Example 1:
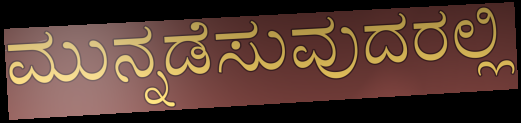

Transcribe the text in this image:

ಮುನ್ನಡೆಸುವುದರಲ್ಲಿ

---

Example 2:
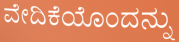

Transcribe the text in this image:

ವೇದಿಕೆಯೊಂದನ್ನು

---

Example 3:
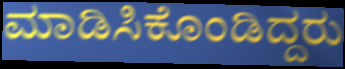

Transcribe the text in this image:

ಮಾಡಿಸಿಕೊಂಡಿದ್ದರು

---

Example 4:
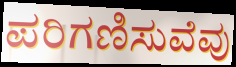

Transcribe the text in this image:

ಪರಿಗಣಿಸುವೆವು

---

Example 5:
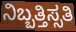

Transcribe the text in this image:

ನಿಬ್ಬತ್ತಿಸ್ಸತಿ